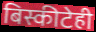
बिस्कीटेही